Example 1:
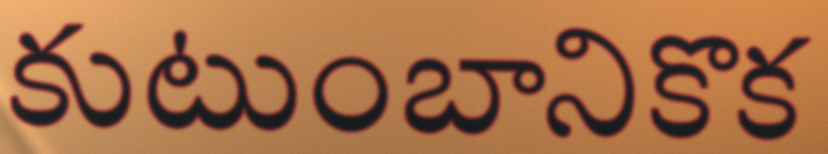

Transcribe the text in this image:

కుటుంబానికొక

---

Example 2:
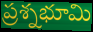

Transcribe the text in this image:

ప్రశ్నభూమి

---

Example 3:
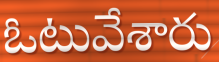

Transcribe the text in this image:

ఓటువేశారు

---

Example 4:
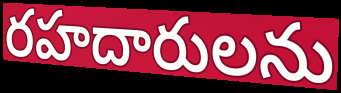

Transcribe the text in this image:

రహదారులను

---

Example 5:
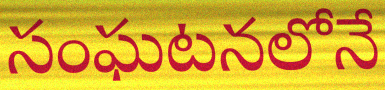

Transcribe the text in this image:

సంఘటనలోనే